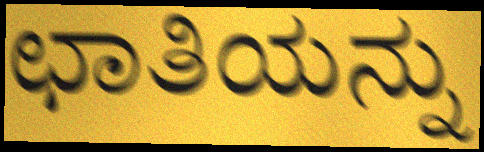
ಛಾತಿಯನ್ನು